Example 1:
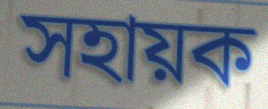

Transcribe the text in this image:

সহায়ক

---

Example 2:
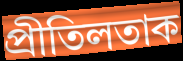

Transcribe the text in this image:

প্ৰীতিলতাক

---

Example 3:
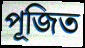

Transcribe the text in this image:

পূজিত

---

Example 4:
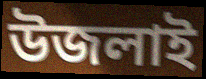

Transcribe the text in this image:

উজলাই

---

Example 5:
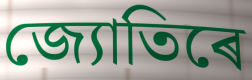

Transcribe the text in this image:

জ্যোতিৰে